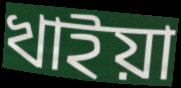
খাইয়া